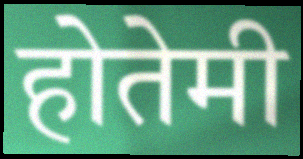
होतेमी